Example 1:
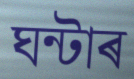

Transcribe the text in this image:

ঘন্টাৰ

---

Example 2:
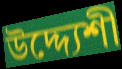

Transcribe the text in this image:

উদ্দ্যেশী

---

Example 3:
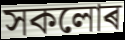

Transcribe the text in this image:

সকলোৰ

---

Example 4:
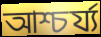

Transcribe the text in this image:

আশ্চৰ্য্য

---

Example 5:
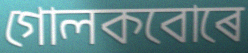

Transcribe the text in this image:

গোলকবোৰে